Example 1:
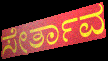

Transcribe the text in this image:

ಸೇರ್ತಾವ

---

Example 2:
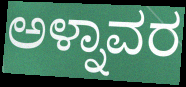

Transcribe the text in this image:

ಅಳ್ನಾವರ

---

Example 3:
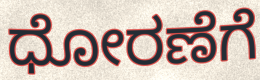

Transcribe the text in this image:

ಧೋರಣೆಗೆ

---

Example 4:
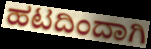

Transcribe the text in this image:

ಹಟದಿಂದಾಗಿ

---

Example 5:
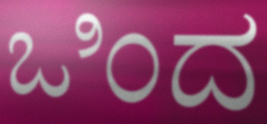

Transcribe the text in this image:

ಒಿಂದ